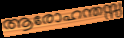
ആരോഹന്തസ്സ